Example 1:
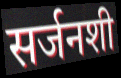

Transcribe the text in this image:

सर्जनशी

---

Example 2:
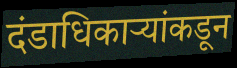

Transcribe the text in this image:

दंडाधिकाऱ्यांकडून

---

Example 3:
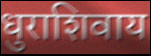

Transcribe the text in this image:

धुराशिवाय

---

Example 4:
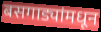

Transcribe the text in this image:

बसगाड्यांमधून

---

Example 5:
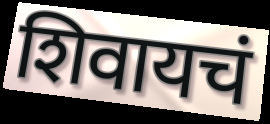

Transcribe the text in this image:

शिवायचं